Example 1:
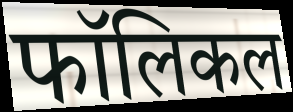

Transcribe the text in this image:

फॉलिकल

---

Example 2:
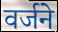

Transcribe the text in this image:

वर्जने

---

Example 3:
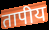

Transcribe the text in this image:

तापीय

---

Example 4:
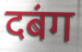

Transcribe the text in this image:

दबंग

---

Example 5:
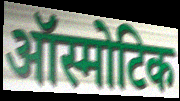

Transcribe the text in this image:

ऑस्मोटिक